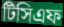
টিসিএফ